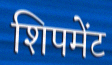
शिपमेंट